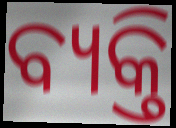
ବ୍ୟକ୍ତି